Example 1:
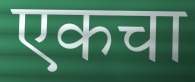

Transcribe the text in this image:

एकचा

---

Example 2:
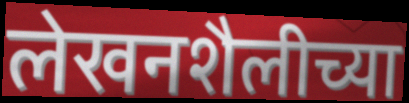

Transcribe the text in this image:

लेखनशैलीच्या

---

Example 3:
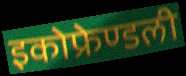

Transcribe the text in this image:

इकोफ्रेण्डली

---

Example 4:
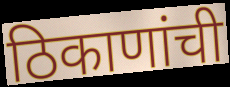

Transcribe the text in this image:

ठिकाणांची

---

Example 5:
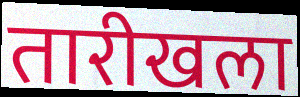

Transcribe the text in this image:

तारीखला